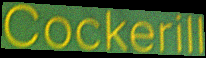
Cockerill